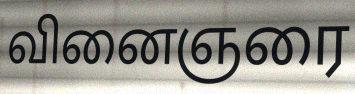
வினைஞரை